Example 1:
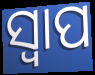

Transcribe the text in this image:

ସ୍ବାପ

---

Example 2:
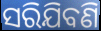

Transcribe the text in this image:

ସରିଯିବଣି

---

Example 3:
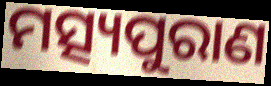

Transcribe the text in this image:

ମତ୍ସ୍ୟପୁରାଣ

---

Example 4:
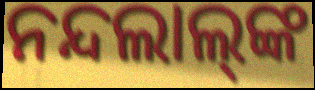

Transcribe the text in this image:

ନନ୍ଦଲାଲ୍‌ଙ୍କ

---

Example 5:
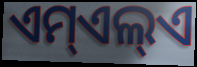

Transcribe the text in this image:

ଏମ୍ଏଲ୍ଏ